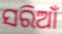
ସରିଆଁ